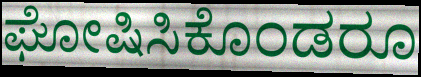
ಘೋಷಿಸಿಕೊಂಡರೂ